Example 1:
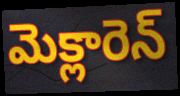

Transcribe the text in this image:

మెక్లారెన్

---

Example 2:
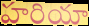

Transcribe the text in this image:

హరియా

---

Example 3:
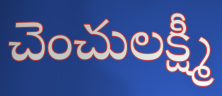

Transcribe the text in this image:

చెంచులక్ష్మీ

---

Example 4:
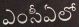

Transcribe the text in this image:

ఎంసీఏలో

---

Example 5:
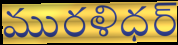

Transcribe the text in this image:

మురళిధర్